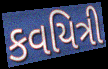
કવયિત્રી